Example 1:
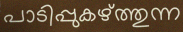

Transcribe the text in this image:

പാടിപ്പുകഴ്ത്തുന്ന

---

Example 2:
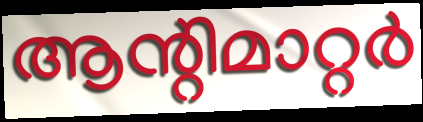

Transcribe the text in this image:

ആന്റിമാറ്റർ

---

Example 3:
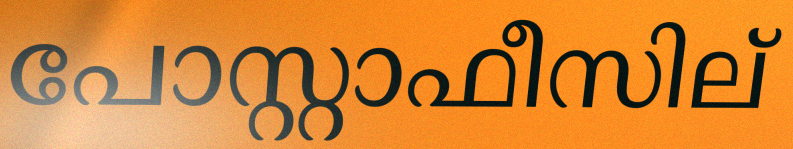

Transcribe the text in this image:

പോസ്റ്റാഫീസില്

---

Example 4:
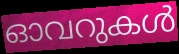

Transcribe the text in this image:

ഓവറുകൾ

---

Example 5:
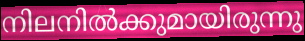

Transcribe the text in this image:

നിലനിൽക്കുമായിരുന്നു